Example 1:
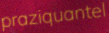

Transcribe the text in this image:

praziquantel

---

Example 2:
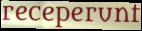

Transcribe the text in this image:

receperunt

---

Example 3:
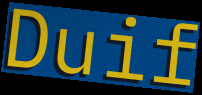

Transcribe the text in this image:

Duif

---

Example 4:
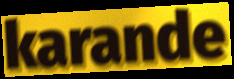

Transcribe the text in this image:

karande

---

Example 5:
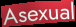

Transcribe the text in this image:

Asexual